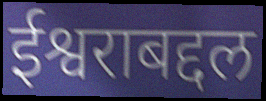
ईश्वराबद्दल